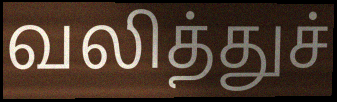
வலித்துச்